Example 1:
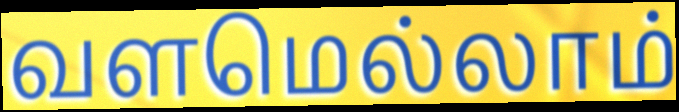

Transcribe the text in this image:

வளமெல்லாம்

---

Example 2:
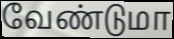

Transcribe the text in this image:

வேண்டுமா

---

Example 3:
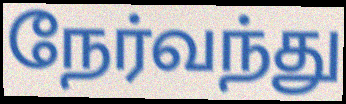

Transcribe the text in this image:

நேர்வந்து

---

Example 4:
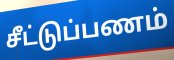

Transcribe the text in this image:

சீட்டுப்பணம்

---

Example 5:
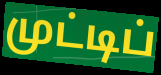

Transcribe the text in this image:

முட்டிப்